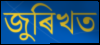
জুৰিখত